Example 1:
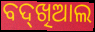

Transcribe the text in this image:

ବଦ୍‌ଖିଆଲ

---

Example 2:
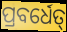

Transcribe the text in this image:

ପ୍ରବର୍ଧେତ୍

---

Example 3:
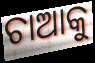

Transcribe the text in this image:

ଚାଆକୁ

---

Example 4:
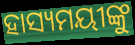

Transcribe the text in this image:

ହାସ୍ୟମୟୀଙ୍କୁ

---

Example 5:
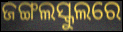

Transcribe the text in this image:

ଜଙ୍ଗଲସ୍କୁଲରେ